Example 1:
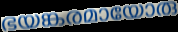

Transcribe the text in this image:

ഭയങ്കരമായോരു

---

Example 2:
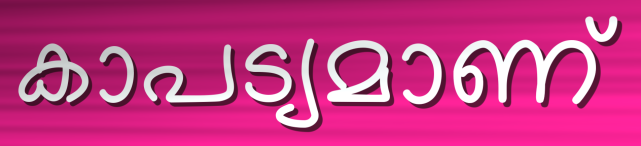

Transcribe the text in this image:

കാപട്യമാണ്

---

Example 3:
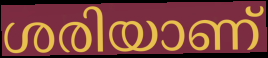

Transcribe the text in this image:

ശരിയാണ്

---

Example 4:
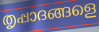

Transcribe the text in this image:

തൃപ്പാദങ്ങളെ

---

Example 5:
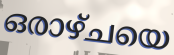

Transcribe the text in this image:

ഒരാഴ്ചയെ